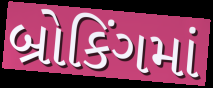
બ્રોકિંગમાં